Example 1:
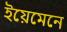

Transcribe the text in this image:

ইয়েমেনে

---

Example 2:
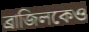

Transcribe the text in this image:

ব্রাজিলকেও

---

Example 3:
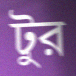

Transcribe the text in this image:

টুর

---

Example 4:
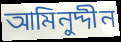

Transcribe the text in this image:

আমিনুদ্দীন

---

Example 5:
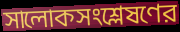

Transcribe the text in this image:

সালোকসংশ্লেষণের